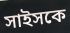
সাইসকে